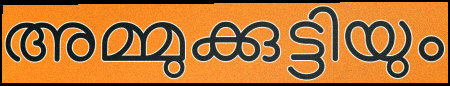
അമ്മുക്കുട്ടിയും